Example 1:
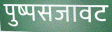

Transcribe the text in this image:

पुष्पसजावट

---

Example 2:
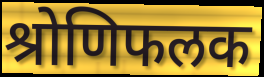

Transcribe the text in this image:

श्रोणिफलक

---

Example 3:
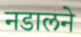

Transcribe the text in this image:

नडालने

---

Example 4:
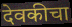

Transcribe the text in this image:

देवकीचा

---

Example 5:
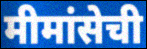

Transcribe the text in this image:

मीमांसेची